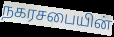
நகரசபையின்